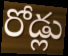
రోడ్లు